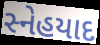
સ્નેહયાદ